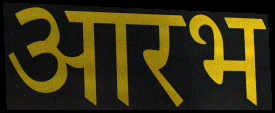
आरभ